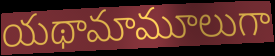
యథామామూలుగా